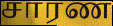
சாரண